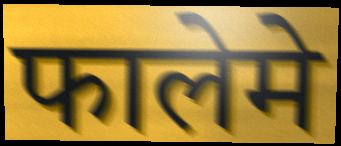
फालेमे